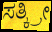
ಸತ್ಕ್ರೀ